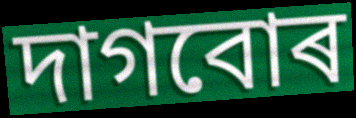
দাগবোৰ